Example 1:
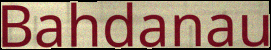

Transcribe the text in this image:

Bahdanau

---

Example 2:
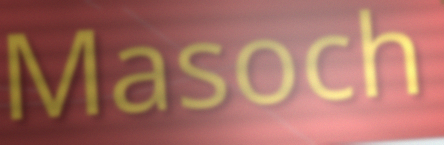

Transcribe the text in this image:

Masoch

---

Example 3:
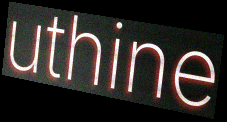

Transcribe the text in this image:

uthine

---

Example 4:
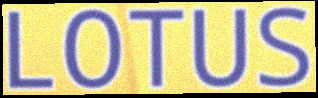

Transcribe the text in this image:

LOTUS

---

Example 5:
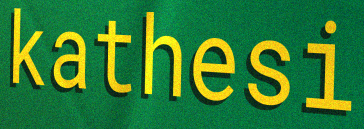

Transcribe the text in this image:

kathesi